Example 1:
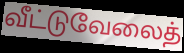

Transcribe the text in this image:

வீட்டுவேலைத்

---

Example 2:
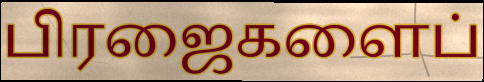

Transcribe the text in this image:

பிரஜைகளைப்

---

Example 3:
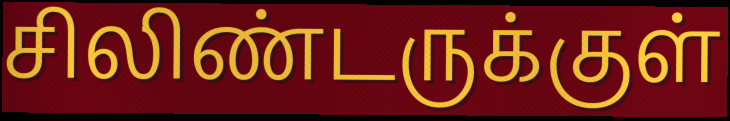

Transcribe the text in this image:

சிலிண்டருக்குள்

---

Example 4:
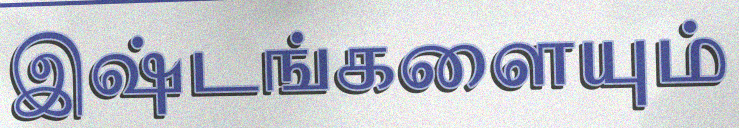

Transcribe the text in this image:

இஷ்டங்களையும்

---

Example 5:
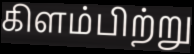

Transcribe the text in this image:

கிளம்பிற்று